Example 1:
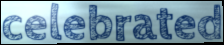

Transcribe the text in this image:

celebrated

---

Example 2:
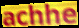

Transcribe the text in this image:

achhe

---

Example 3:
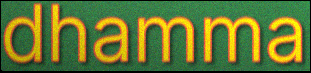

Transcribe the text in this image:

dhamma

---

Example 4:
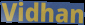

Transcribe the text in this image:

Vidhan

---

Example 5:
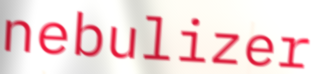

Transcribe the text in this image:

nebulizer